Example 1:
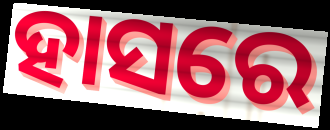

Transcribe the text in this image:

ହାସରେ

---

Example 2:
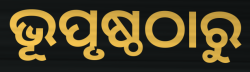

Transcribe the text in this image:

ଭୂପୃଷ୍ଠଠାରୁ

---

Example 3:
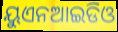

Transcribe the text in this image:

ୟୁଏନଆଇଡିଓ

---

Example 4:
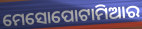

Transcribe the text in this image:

ମେସୋପୋଟାମିଆର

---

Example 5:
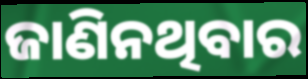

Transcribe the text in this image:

ଜାଣିନଥିବାର